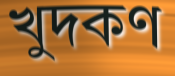
খুদকণ